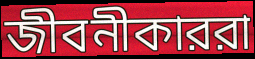
জীবনীকাররা